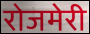
रोजमेरी